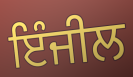
ਇੰਜੀਲ